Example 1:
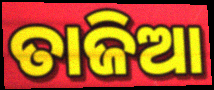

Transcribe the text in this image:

ତାଜିଆ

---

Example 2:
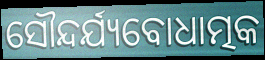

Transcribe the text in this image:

ସୌନ୍ଦର୍ଯ୍ୟବୋଧାତ୍ମକ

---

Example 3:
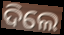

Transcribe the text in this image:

ଦିଲେ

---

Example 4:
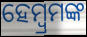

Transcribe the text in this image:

ହେମ୍ବ୍ରମଙ୍କ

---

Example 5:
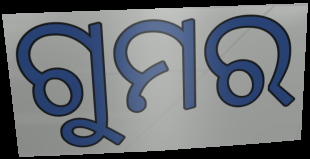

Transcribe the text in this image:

ଗୁମର